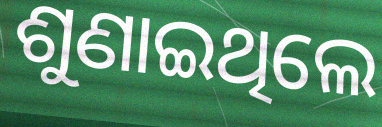
ଶୁଣାଇଥିଲେ